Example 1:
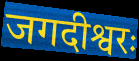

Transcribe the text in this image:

जगदीश्वरः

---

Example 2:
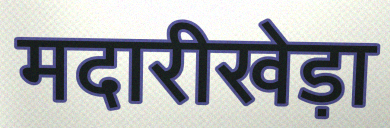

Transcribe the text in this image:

मदारीखेड़ा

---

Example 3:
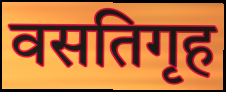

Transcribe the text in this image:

वसतिगृह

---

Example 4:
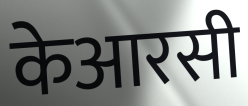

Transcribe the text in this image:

केआरसी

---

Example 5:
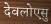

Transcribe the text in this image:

देवलोएसु